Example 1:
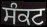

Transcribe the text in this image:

ਸੰਕਟ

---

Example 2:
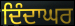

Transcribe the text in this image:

ਦਿੰਦਾਘਰ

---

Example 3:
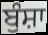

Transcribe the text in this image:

ਬੁੰਸ਼ਾ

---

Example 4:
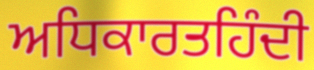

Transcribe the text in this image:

ਅਧਿਕਾਰਤਹਿੰਦੀ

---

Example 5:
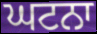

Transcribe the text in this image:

ਘਟਨਾ